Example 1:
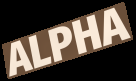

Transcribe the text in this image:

ALPHA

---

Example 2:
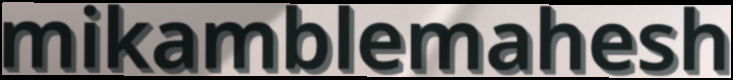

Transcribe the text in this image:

mikamblemahesh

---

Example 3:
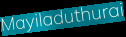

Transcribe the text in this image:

Mayiladuthurai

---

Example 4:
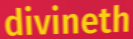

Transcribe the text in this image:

divineth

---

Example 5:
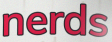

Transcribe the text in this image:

nerds